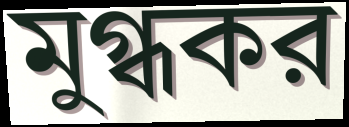
মুগ্ধকর